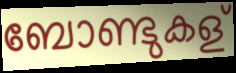
ബോണ്ടുകള്